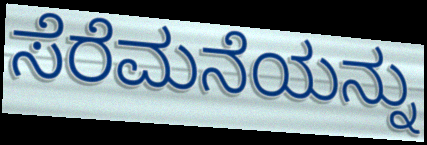
ಸೆರೆಮನೆಯನ್ನು